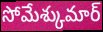
సోమేశ్కుమార్